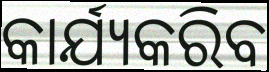
କାର୍ଯ୍ୟକରିବ